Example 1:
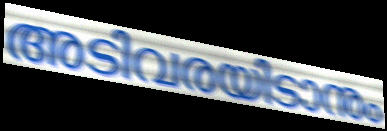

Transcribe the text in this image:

അടിവരയിടാനും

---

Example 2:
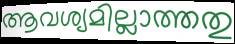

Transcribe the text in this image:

ആവശ്യമില്ലാത്തതു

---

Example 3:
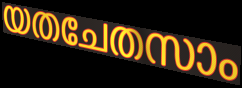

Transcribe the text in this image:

യതചേതസാം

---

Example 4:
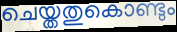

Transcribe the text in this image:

ചെയ്തതുകൊണ്ടും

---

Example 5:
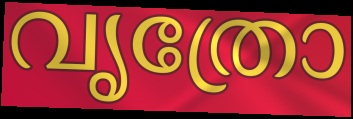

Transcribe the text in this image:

വൃത്രോ